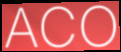
ACO